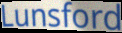
Lunsford